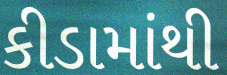
કીડામાંથી